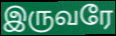
இருவரே